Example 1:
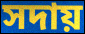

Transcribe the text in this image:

সদায়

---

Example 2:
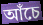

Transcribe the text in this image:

আঁচে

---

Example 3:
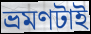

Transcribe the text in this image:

ভ্রমণটাই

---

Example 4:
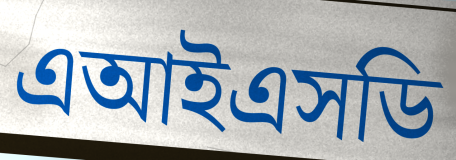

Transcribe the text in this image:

এআইএসডি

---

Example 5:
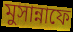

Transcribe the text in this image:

মুসান্নাফে